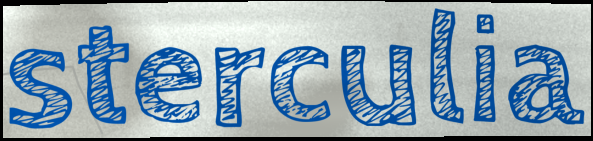
sterculia